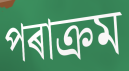
পৰাক্ৰম